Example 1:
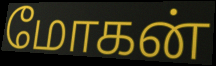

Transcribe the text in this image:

மோகன்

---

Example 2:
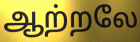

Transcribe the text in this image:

ஆற்றலே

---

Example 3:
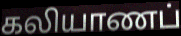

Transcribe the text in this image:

கலியாணப்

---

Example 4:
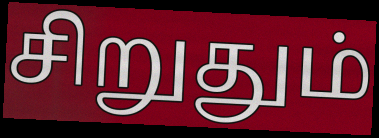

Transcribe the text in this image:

சிறுதும்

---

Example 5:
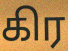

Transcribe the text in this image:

கிர